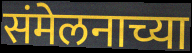
संमेलनाच्या